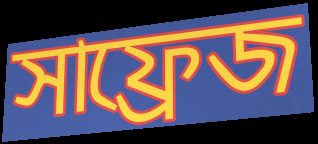
সাফ্রেজ